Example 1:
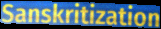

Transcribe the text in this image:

Sanskritization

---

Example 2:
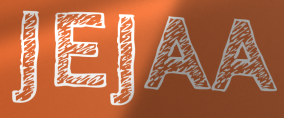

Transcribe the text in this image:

JEJAA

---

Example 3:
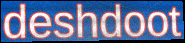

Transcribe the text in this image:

deshdoot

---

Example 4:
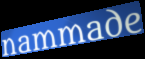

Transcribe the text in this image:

nammade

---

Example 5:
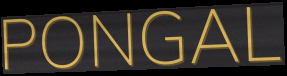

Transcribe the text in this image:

PONGAL